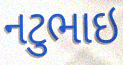
નટુભાઇ